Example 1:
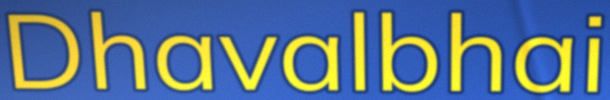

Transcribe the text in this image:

Dhavalbhai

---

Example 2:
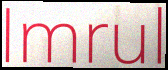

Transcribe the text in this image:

Imrul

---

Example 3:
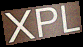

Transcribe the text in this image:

XPL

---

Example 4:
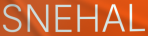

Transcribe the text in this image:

SNEHAL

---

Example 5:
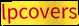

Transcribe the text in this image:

lpcovers